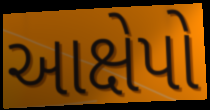
આક્ષેપો